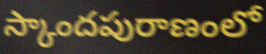
స్కాందపురాణంలో